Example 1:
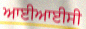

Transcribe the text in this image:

ਆਈਆਈਸੀ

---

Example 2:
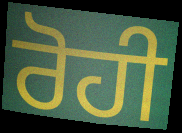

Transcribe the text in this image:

ਰੋਹੀ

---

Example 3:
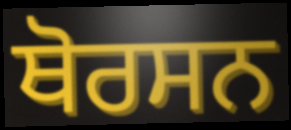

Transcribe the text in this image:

ਥੋਰਸਨ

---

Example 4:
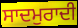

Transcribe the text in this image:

ਸਾਦਮੁਰਾਦੀ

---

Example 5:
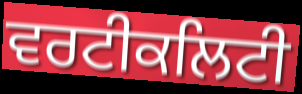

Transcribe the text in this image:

ਵਰਟੀਕਲਿਟੀ